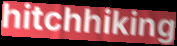
hitchhiking